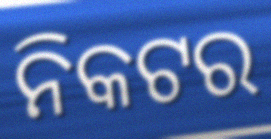
ନିକଟର